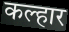
कल्हार